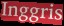
Inggris